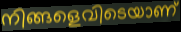
നിങ്ങളെവിടെയാണ്